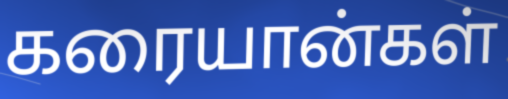
கரையான்கள்